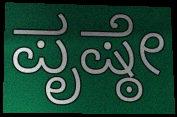
ಪೃಷ್ಠೇ